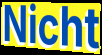
Nicht